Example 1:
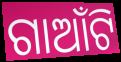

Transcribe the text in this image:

ଗାଆଁଟି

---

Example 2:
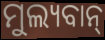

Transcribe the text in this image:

ମୁଲ୍ୟବାନ୍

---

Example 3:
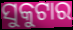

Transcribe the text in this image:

ସୁକୁଟାର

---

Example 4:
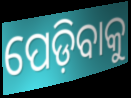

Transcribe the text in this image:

ପେଡ଼ିବାକୁ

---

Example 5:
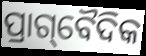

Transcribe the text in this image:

ପ୍ରାଗ୍‌ବୈଦିକ